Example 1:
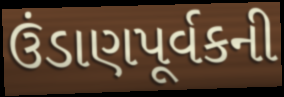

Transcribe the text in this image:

ઉંડાણપૂર્વકની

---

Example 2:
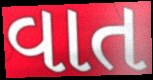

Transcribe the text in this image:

વાત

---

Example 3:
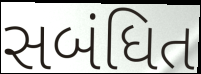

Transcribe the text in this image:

સબંધિત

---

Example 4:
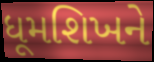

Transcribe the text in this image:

ધૂમશિખને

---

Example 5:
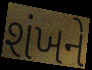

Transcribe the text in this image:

શંખને